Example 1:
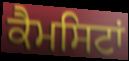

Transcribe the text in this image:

ਕੈਮਸਿਟਾਂ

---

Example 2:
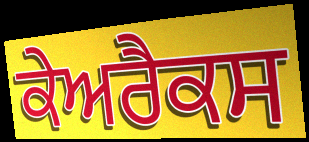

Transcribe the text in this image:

ਕੇਅਰੈਕਸ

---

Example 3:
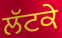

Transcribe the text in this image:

ਲੱਟਕੇ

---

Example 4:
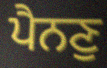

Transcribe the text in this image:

ਪੈਨਣੁ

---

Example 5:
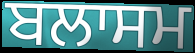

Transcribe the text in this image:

ਬਲਾਸਮ